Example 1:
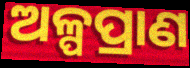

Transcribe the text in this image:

ଅଳ୍ପପ୍ରାଣ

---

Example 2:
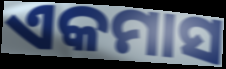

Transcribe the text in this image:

ଏକମାସ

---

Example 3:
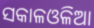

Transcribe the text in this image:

ସକାଳଓଳିଆ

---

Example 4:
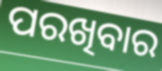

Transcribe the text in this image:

ପରଖିବାର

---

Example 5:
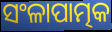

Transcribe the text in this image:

ସଂଳାପାତ୍ମକ